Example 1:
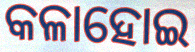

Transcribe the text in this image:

କଳାହୋଇ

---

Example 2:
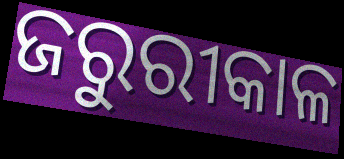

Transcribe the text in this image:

ଜରୁରୀକାଳ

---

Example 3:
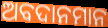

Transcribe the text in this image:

ଅବଦାନମାନ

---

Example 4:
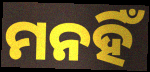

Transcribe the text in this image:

ମନହିଁ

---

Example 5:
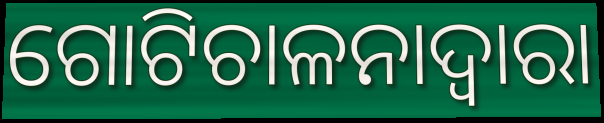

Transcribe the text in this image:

ଗୋଟିଚାଳନାଦ୍ୱାରା